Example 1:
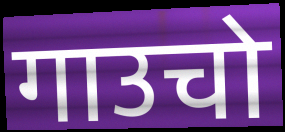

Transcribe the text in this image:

गाउचो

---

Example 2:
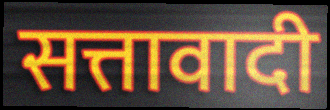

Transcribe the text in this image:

सत्तावादी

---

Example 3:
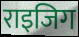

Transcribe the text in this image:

राइजिग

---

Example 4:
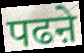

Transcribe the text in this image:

पढऩे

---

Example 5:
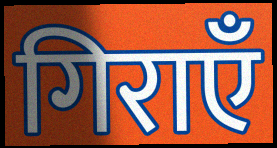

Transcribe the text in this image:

गिराएँ